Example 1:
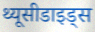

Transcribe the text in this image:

थ्यूसीडाइड्स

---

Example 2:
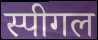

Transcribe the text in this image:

स्पीगल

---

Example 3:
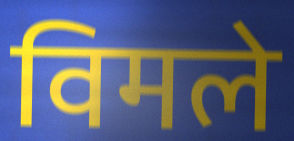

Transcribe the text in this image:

विमले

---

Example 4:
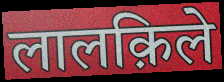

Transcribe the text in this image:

लालक़िले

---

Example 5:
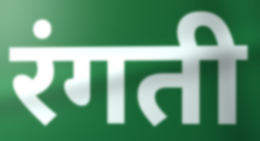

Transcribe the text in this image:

रंगती